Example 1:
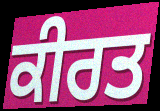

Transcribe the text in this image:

ਕੀਰਤ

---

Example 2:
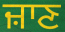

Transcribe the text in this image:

ਜ਼ਾਣ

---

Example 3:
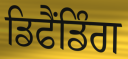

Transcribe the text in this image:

ਡਿਫੈਂਡਿੰਗ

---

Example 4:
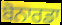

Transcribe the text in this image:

ਬੋਨਾਰਡਾ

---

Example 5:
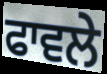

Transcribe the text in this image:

ਫਾਵਲੇ